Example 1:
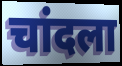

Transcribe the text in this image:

चांदला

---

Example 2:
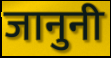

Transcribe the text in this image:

जानुनी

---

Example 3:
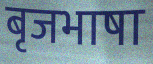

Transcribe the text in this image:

बृजभाषा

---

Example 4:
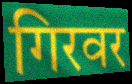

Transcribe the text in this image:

गिरवर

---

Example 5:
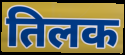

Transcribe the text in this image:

तिलक